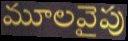
మూలవైపు